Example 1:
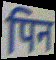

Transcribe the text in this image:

पिन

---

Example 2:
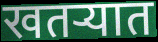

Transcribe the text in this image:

खतऱ्यात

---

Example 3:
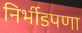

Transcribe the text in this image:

निर्भीडपणा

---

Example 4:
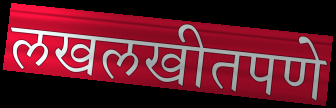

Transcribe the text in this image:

लखलखीतपणे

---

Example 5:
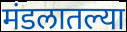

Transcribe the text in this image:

मंडलातल्या